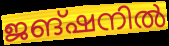
ജങ്ഷനിൽ